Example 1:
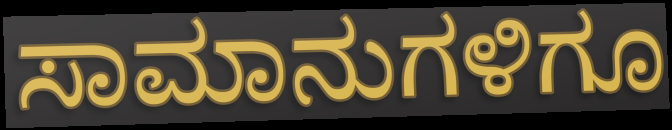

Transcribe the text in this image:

ಸಾಮಾನುಗಳಿಗೂ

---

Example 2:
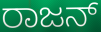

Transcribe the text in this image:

ರಾಜನ್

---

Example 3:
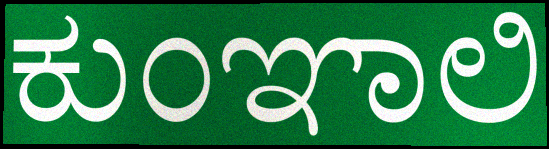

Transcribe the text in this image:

ಕುಂಞಾಲಿ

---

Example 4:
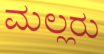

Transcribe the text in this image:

ಮಲ್ಲರು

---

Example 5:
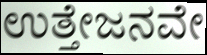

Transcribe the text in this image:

ಉತ್ತೇಜನವೇ